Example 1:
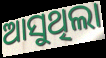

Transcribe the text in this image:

ଆସୁଥିଲା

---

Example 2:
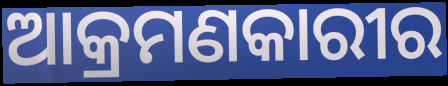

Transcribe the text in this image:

ଆକ୍ରମଣକାରୀର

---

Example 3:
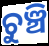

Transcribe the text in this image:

ଚୁଞ୍ଚି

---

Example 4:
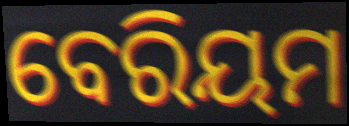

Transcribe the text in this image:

ବେରିୟମ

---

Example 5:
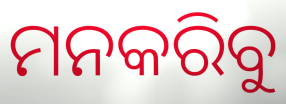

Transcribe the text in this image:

ମନକରିବୁ